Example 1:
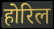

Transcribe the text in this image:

होरिल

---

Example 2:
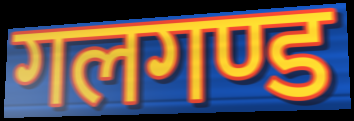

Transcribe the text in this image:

गलगण्ड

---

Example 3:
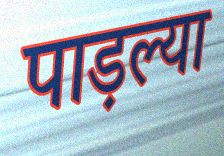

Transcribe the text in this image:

पाड़ल्या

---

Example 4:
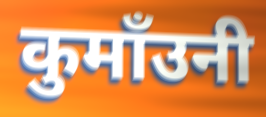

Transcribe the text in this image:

कुमाँउनी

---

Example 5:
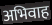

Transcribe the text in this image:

अभिवाह